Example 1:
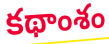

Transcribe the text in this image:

కథాంశం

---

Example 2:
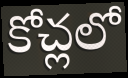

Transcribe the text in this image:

కోచ్లలో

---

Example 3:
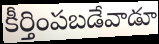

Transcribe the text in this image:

కీర్తింపబడేవాడూ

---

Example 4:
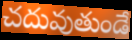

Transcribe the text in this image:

చదువుతుండే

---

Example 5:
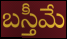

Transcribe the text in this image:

బస్తీమే